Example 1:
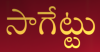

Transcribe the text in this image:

సాగేట్టు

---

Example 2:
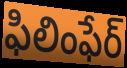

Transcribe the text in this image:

ఫిలింఫేర్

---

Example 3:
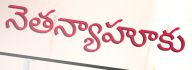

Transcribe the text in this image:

నెతన్యాహూకు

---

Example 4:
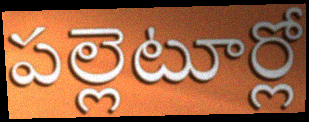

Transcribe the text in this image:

పల్లెటూర్లో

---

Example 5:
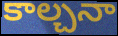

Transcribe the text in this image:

కాల్చనా